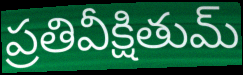
ప్రతివీక్షితుమ్